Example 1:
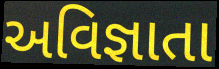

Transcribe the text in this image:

અવિજ્ઞાતા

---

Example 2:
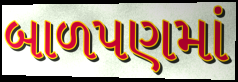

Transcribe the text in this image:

બાળપણમાં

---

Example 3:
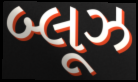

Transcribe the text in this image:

બ્લૂઝ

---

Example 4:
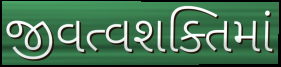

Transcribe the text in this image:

જીવત્વશક્તિમાં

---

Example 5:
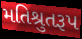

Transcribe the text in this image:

મતિશ્રુતરૂપ